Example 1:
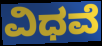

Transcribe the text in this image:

ವಿಧವೆ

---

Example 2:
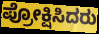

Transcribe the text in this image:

ಪ್ರೋಕ್ಷಿಸಿದರು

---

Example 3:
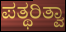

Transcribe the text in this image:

ಪತ್ಥರಿತ್ವಾ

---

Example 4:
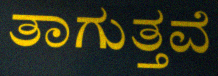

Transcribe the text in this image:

ತಾಗುತ್ತವೆ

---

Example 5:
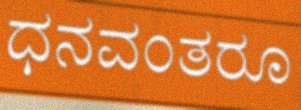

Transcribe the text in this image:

ಧನವಂತರೂ